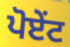
ਪੋਏਂਟ